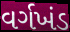
વર્ગખંડ